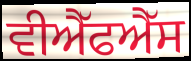
ਵੀਐੱਫਐੱਸ